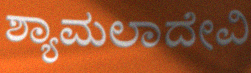
ಶ್ಯಾಮಲಾದೇವಿ